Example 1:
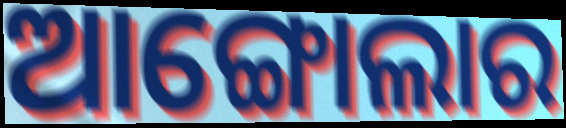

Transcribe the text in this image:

ଆଙ୍ଗୋଲାର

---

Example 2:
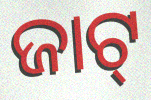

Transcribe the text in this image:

ଜାଟ୍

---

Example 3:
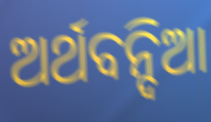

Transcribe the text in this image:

ଅର୍ଥବନ୍ଦିଆ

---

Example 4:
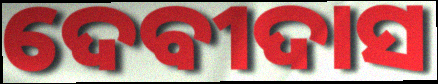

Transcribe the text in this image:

ଦେବୀଦାସ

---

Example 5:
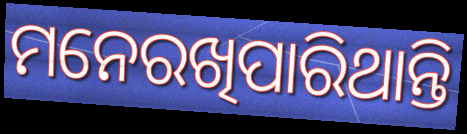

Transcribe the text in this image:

ମନେରଖିପାରିଥାନ୍ତି